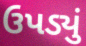
ઉપડ્યું